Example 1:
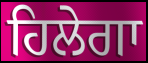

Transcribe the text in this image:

ਹਿਲੇਗਾ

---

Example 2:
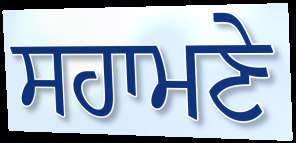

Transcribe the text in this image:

ਸਹਾਮਣੇ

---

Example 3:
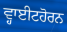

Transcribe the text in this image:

ਵ੍ਹਾਈਟਹੋਰਨ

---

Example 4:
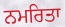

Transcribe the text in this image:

ਨਮਰਿਤਾ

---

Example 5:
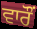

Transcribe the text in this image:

ਵਾਰੌਂ